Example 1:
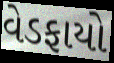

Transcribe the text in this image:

વેડફાયો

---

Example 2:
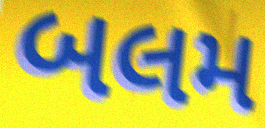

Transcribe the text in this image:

બલમ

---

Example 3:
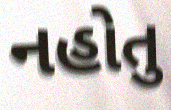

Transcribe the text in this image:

નહોતુ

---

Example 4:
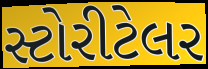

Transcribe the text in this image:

સ્ટોરીટેલર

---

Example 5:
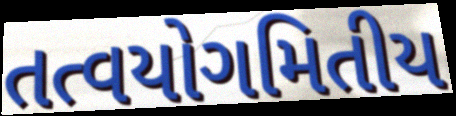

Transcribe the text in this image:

તત્વયોગમિતીય